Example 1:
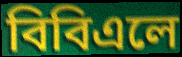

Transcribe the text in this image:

বিবিএলে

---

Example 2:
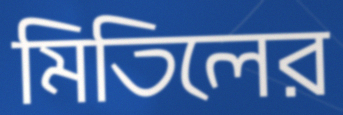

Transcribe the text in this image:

মিতিলের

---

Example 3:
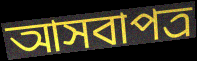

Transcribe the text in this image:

আসবাপত্র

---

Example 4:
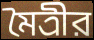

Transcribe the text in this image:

মৈত্রীর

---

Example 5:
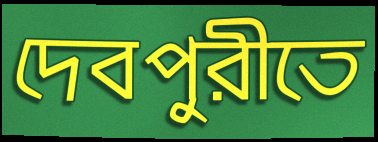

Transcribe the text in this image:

দেবপুরীতে